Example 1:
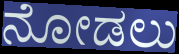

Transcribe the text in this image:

ನೋಡಲು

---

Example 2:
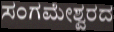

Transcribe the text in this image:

ಸಂಗಮೇಶ್ವರದ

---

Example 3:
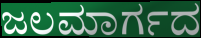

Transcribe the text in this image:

ಜಲಮಾರ್ಗದ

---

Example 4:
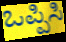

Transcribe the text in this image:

ಒಪ್ಪಿಸಿ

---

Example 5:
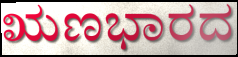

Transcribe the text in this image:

ಋಣಭಾರದ